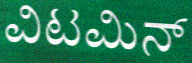
ವಿಟಮಿನ್